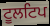
ਟੂਲਟਿਪ